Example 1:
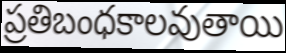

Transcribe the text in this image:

ప్రతిబంధకాలవుతాయి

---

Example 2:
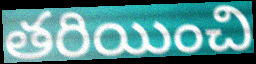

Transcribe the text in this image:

తరియించి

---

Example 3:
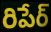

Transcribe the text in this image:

రిపేర్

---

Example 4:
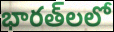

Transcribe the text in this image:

భారత్‌లలో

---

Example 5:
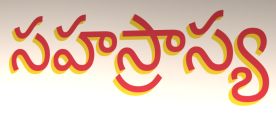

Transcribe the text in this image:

సహస్రాస్య